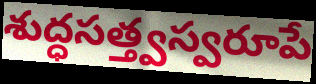
శుద్ధసత్త్వస్వరూపే